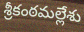
శ్రీకంఠమల్లేశు